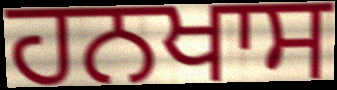
ਹਨਖਾਸ